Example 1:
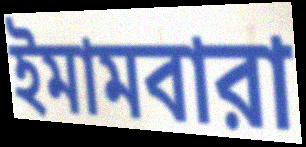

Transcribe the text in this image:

ইমামবারা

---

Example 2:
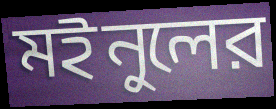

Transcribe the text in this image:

মইনুলের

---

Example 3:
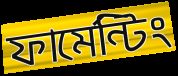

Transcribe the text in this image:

ফার্মেন্টিং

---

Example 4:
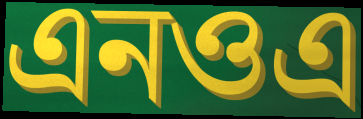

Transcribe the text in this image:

এনওএ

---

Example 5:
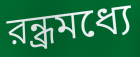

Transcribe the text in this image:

রন্ধ্রমধ্যে